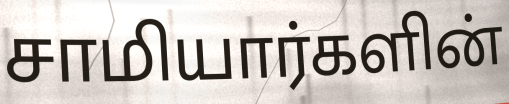
சாமியார்களின்